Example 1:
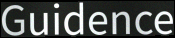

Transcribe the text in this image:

Guidence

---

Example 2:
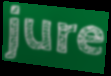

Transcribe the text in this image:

jure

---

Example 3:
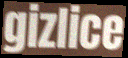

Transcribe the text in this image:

gizlice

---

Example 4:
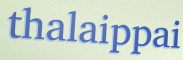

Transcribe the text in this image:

thalaippai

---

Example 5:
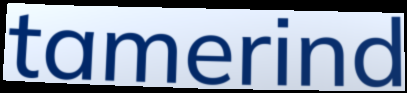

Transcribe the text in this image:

tamerind